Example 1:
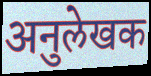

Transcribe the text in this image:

अनुलेखक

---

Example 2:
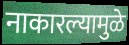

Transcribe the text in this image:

नाकारल्यामुळे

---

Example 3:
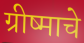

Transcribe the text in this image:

ग्रीष्माचे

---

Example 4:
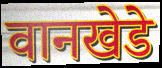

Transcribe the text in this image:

वानखेडे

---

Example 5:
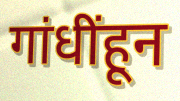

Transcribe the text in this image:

गांधींहून